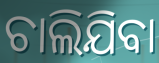
ଚାଲିଯିବା